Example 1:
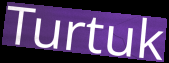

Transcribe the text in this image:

Turtuk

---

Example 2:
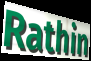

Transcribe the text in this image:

Rathin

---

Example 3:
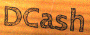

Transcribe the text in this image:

DCash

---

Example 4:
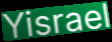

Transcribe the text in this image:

Yisrael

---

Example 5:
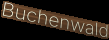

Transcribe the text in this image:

Buchenwald